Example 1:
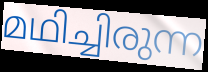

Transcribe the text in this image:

മഥിച്ചിരുന്ന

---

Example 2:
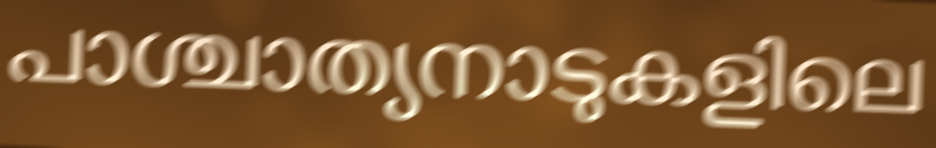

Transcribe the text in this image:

പാശ്ചാത്യനാടുകളിലെ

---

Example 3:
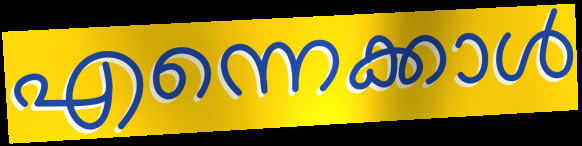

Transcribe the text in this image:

എന്നെക്കാൾ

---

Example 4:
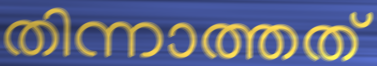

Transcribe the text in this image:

തിന്നാത്തത്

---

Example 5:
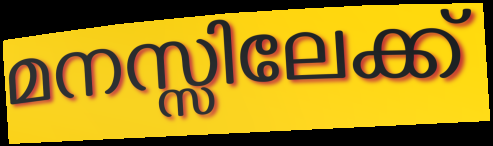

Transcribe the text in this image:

മനസ്സിലേക്ക്